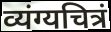
व्यंग्यचित्रं